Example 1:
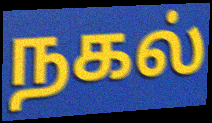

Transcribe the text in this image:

நகல்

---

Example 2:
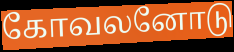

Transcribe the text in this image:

கோவலனோடு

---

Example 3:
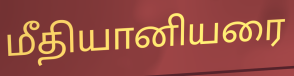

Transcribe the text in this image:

மீதியானியரை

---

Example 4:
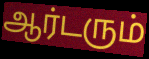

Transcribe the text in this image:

ஆர்டரும்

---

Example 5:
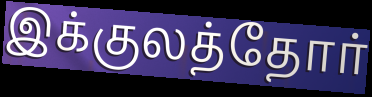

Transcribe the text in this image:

இக்குலத்தோர்